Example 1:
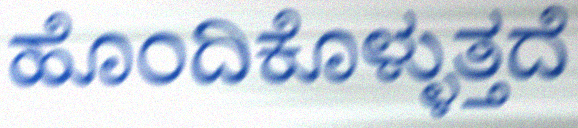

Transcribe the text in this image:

ಹೊಂದಿಕೊಳ್ಳುತ್ತದೆ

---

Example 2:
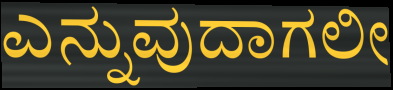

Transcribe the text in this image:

ಎನ್ನುವುದಾಗಲೀ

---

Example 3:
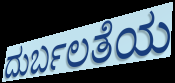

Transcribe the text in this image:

ದುರ್ಬಲತೆಯ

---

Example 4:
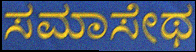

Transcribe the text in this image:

ಸಮಾಸೇಥ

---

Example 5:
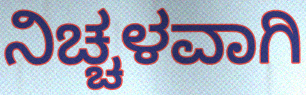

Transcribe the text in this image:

ನಿಚ್ಚಳವಾಗಿ